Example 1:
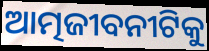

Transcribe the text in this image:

ଆତ୍ମଜୀବନୀଟିକୁ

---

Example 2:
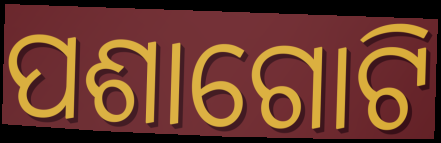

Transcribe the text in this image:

ପଶାଗୋଟି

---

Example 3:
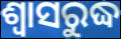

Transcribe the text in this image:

ଶ୍ବାସରୁଦ୍ଧ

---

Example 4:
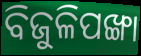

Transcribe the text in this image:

ବିଜୁଳିପଙ୍ଖା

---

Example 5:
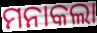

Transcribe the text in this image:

ମନାକଲା